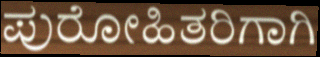
ಪುರೋಹಿತರಿಗಾಗಿ